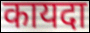
कायदा